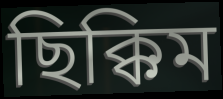
ছিক্কিম